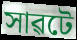
সাৱটে